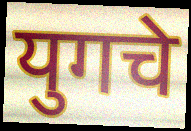
युगचे